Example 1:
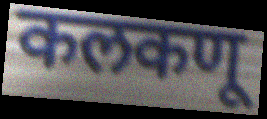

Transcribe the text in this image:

कलकणू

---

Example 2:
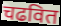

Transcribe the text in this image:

चढवित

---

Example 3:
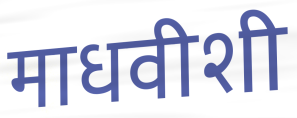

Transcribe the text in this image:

माधवीशी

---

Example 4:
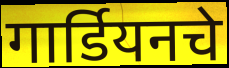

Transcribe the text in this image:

गार्डियनचे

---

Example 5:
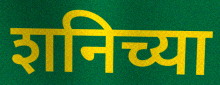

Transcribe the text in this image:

शनिच्या